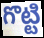
గొట్టి